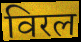
विरल